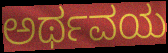
ಅರ್ಥವಯ